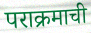
पराक्रमाची